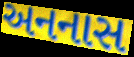
અનનાસ